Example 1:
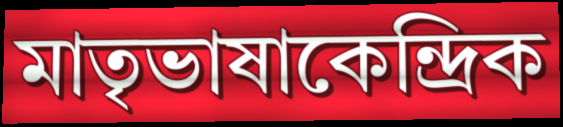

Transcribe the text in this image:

মাতৃভাষাকেন্দ্রিক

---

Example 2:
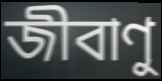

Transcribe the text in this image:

জীবাণু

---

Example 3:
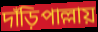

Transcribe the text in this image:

দাঁড়িপাল্লায়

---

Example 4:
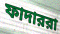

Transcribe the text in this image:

ফাদাররা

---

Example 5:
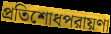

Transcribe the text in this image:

প্রতিশোধপরায়ণা